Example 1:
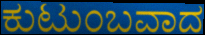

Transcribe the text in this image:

ಕುಟುಂಬವಾದ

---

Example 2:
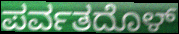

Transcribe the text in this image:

ಪರ್ವತದೊಳ್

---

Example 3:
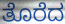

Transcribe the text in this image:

ತೊರೆದ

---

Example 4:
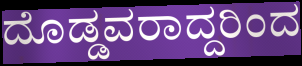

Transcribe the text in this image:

ದೊಡ್ಡವರಾದ್ದರಿಂದ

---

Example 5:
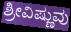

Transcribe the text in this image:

ಶ್ರೀವಿಷ್ಣುವು